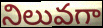
నిలువగా